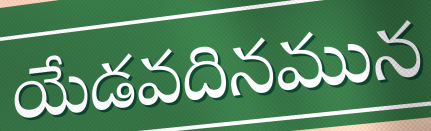
యేడవదినమున